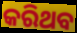
କରିଥବ